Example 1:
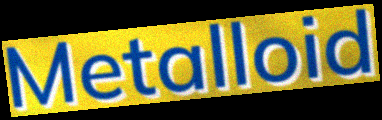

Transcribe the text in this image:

Metalloid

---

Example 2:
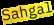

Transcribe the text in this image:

Sahgal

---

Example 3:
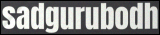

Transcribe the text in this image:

sadgurubodh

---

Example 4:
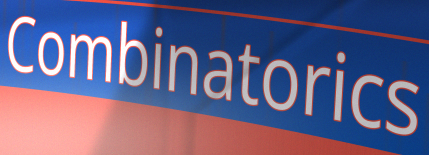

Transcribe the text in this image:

Combinatorics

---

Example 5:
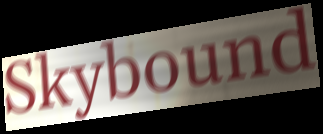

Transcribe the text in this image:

Skybound